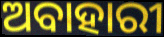
ଅବାହାରୀ